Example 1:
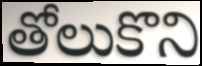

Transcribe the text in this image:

తోలుకొని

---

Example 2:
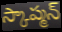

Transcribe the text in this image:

స్కాప్మన్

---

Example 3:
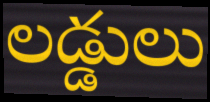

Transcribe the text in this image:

లడ్డులు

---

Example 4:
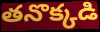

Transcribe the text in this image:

తనొక్కడి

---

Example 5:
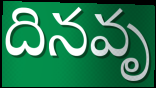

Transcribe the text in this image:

దినవృ